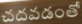
చదవడంతో